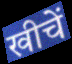
खीचें